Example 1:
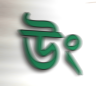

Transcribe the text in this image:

উং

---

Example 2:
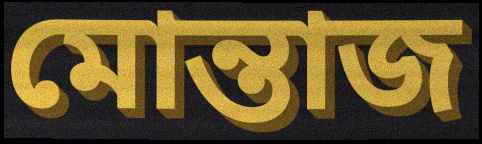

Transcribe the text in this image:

মোন্তাজ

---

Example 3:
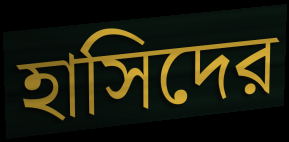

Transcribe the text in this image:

হাসিদের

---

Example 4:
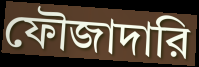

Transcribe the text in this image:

ফৌজাদারি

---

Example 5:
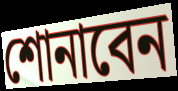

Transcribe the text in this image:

শোনাবেন